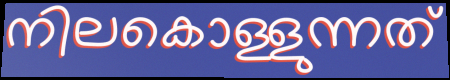
നിലകൊള്ളുന്നത്